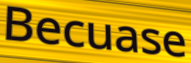
Becuase